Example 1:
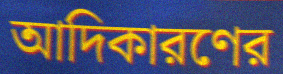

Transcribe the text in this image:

আদিকারণের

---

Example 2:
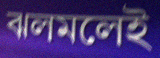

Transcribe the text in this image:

ঝলমলেই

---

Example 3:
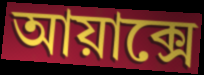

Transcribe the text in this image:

আয়াক্সে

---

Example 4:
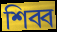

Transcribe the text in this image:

শিব্ব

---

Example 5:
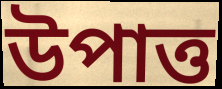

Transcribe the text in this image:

উপাত্ত